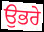
ਉਭਰੇ